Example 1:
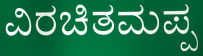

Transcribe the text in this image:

ವಿರಚಿತಮಪ್ಪ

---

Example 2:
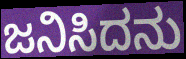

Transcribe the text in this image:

ಜನಿಸಿದನು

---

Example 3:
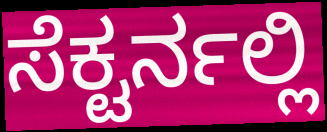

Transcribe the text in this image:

ಸೆಕ್ಟರ್ನಲ್ಲಿ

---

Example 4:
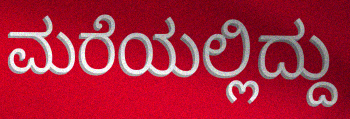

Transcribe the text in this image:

ಮರೆಯಲ್ಲಿದ್ದು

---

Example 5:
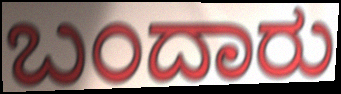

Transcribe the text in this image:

ಬಂದಾರು